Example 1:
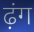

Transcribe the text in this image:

ढ़ंग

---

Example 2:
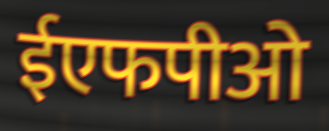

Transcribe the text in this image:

ईएफपीओ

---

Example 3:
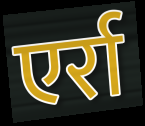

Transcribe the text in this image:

एर्रा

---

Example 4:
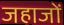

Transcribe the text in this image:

जहाजों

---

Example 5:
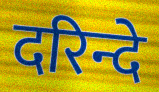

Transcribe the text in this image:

दरिन्दे